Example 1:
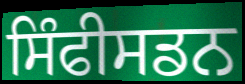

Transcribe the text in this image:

ਸਿੰਫੀਸਡਨ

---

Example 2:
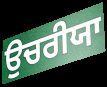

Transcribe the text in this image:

ਉਚਰੀਯਾ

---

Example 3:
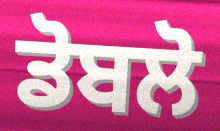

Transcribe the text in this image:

ਡੋਬਲੋ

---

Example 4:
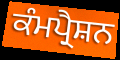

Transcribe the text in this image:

ਕੰਮਪ੍ਰੈਸ਼ਨ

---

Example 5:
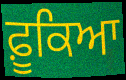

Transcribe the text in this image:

ਫ਼ੂਕਿਆ